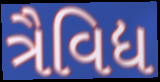
ત્રૈવિદ્ય